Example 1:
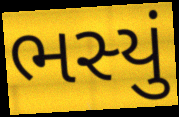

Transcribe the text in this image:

ભસ્યું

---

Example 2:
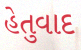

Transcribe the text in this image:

હેતુવાદ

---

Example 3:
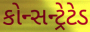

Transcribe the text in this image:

કોન્સન્ટ્રેટેડ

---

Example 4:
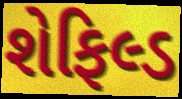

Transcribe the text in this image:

શેફિલ્ડ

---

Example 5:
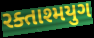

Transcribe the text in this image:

રક્તાશ્મયુગ